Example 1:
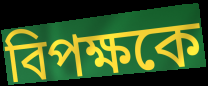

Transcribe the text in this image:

বিপক্ষকে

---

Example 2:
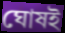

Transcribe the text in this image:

ঘোষই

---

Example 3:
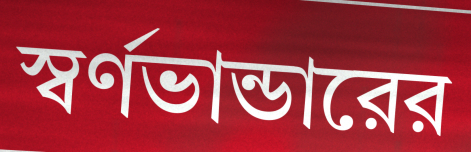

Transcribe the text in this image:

স্বর্ণভান্ডারের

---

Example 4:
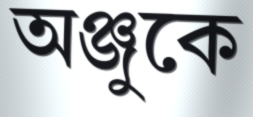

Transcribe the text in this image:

অঞ্জুকে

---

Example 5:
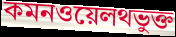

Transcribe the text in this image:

কমনওয়েলথভুক্ত